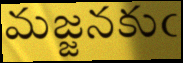
మజ్జనకుఁ